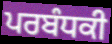
ਪਰਬੰਧਕੀ